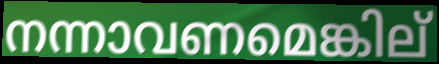
നന്നാവണമെങ്കില്